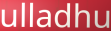
ulladhu